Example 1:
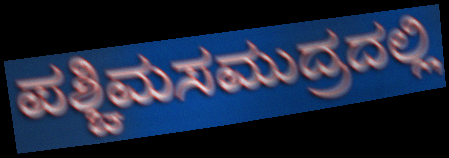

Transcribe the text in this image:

ಪಶ್ಚಿಮಸಮುದ್ರದಲ್ಲಿ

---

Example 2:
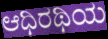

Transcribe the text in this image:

ಆಧಿರಥಿಯ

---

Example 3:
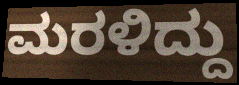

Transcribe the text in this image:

ಮರಳಿದ್ದು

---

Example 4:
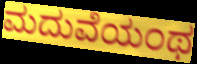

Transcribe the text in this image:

ಮದುವೆಯಂಥ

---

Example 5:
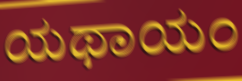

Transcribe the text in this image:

ಯಥಾಯಂ